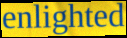
enlighted